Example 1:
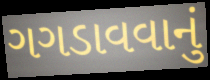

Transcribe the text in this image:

ગગડાવવાનું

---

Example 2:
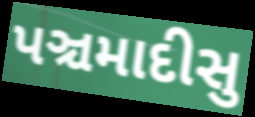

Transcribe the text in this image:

પઞ્ચમાદીસુ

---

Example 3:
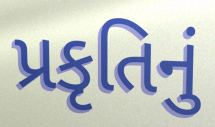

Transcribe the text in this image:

પ્રકૃતિનું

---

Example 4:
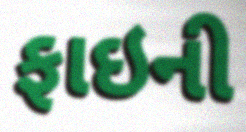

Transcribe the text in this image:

ફાઇની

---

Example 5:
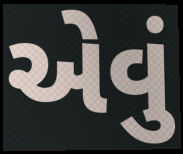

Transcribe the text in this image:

એવું